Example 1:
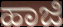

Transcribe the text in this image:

ಹಾಜಿ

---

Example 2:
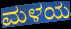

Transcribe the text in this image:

ಮಳಯ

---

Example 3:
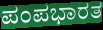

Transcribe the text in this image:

ಪಂಪಭಾರತ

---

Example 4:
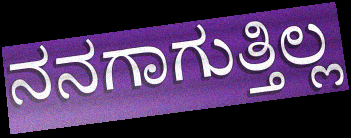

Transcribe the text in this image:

ನನಗಾಗುತ್ತಿಲ್ಲ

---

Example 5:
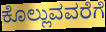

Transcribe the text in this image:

ಕೊಲ್ಲುವವರೆಗೆ